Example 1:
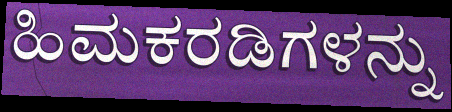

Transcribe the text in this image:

ಹಿಮಕರಡಿಗಳನ್ನು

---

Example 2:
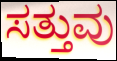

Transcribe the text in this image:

ಸತ್ತುವು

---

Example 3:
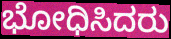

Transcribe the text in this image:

ಭೋಧಿಸಿದರು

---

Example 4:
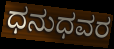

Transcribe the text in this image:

ಧನುಧವರ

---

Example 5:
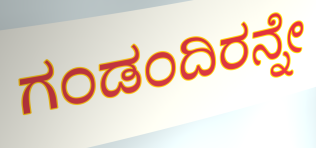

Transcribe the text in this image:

ಗಂಡಂದಿರನ್ನೇ